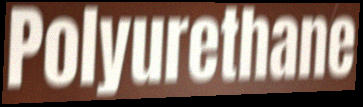
Polyurethane